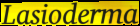
Lasioderma